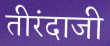
तीरंदाजी